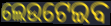
ଲେଉଟେଇବ